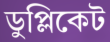
ডুপ্লিকেট